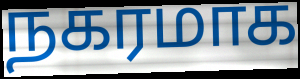
நகரமாக